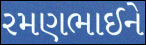
રમણભાઈને